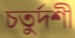
চতুর্দশী